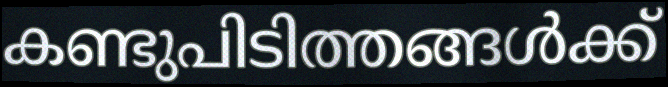
കണ്ടുപിടിത്തങ്ങൾക്ക്